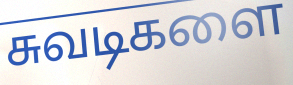
சுவடிகளை